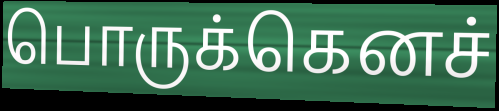
பொருக்கெனச்